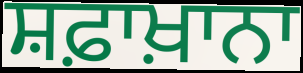
ਸ਼ਫ਼ਾਖ਼ਾਨਾ